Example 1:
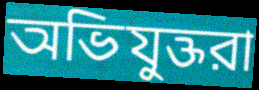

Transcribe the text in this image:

অভিযুক্তরা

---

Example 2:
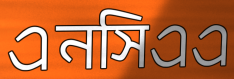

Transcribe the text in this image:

এনসিএএ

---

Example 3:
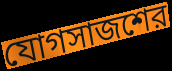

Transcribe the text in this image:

যোগসাজশের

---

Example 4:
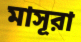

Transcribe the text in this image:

মাসূরা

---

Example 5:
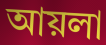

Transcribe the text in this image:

আয়লা